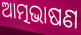
ଆତ୍ମଭାଷଣ